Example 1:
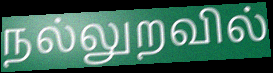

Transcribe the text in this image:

நல்லுறவில்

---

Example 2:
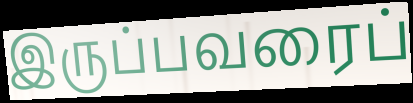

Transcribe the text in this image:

இருப்பவரைப்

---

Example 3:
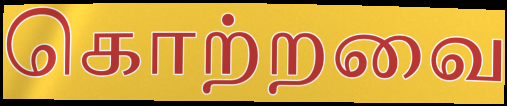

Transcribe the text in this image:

கொற்றவை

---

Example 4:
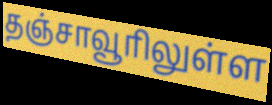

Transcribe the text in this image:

தஞ்சாவூரிலுள்ள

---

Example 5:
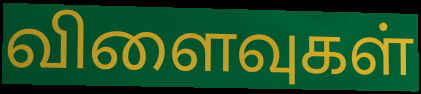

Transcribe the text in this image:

விளைவுகள்